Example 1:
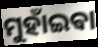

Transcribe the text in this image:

ମୁହାଁଇଵା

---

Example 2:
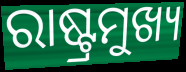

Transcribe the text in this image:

ରାଷ୍ଟ୍ରମୁଖ୍ୟ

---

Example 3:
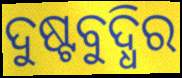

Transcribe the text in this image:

ଦୁଷ୍ଟବୁଦ୍ଧିର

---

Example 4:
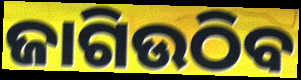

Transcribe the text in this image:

ଜାଗିଉଠିବ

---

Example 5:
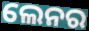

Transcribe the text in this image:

ଲେନର